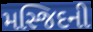
મસ્જિદની